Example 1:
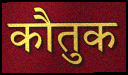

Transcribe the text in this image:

कौतुक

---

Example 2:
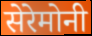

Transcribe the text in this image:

सेरेमोनी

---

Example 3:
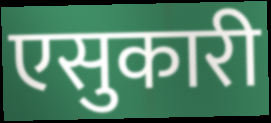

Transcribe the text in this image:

एसुकारी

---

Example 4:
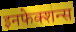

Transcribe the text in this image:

इनफेक्शन्स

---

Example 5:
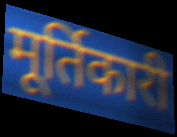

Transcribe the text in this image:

मूर्तिकारी